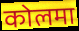
कोलमा